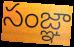
సంజ్ఞా